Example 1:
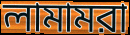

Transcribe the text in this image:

লামামরা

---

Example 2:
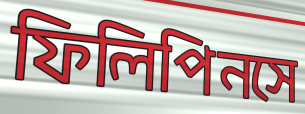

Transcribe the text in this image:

ফিলিপিনসে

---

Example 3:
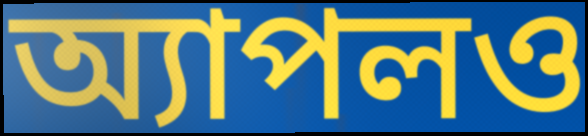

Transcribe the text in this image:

অ্যাপলও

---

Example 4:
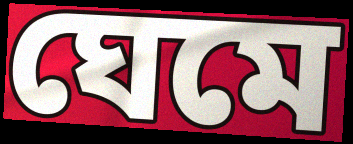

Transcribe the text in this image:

ঘেমে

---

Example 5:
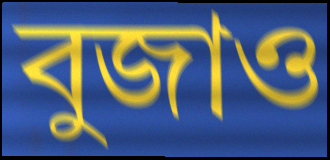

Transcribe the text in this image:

বুজাও